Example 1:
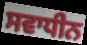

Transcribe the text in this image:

ਸਵਾਧੀਨ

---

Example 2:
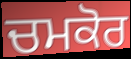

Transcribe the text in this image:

ਚਮਕੋਰ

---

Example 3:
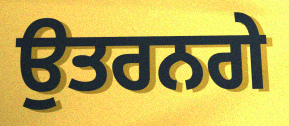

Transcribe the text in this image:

ਉਤਰਨਗੇ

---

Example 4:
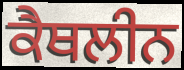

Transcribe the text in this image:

ਕੈਥਲੀਨ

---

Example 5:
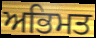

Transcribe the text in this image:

ਅਭਿਮਤ